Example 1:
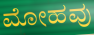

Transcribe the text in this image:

ಮೋಹವು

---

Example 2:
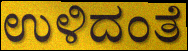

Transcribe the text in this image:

ಉಳಿದಂತೆ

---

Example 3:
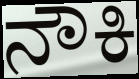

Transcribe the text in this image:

ನೌಕಿ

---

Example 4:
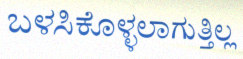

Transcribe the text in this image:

ಬಳಸಿಕೊಳ್ಳಲಾಗುತ್ತಿಲ್ಲ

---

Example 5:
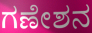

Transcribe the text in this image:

ಗಣೇಶನ